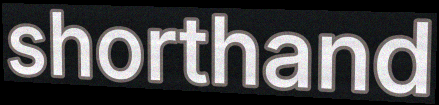
shorthand